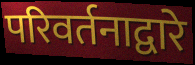
परिवर्तनाद्वारे